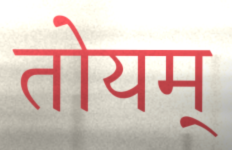
तोयम्